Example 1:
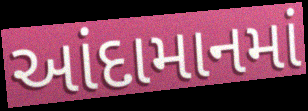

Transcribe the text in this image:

આંદામાનમાં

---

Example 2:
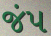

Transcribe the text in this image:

જંપ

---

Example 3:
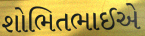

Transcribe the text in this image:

શોભિતભાઈએ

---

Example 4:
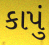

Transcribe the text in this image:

કાપું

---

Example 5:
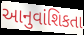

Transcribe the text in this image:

આનુવાંશિકતા